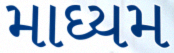
માઘ્યમ